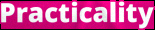
Practicality